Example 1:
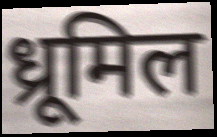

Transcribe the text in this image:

ध्रूमिल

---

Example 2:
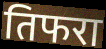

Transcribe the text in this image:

तिफरा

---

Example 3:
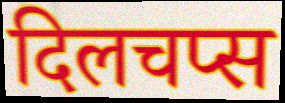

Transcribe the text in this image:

दिलचप्स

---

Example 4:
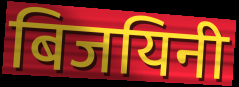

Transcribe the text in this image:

बिजयिनी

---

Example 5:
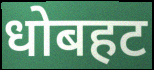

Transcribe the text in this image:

धोबहट